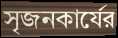
সৃজনকার্যের